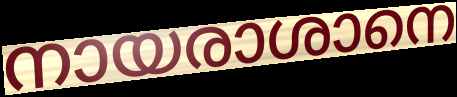
നായരാശാനെ